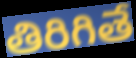
తిరిగితే